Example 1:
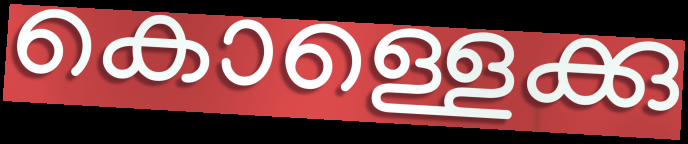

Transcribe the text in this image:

കൊള്ളെക്കു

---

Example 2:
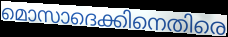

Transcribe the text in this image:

മൊസാദെക്കിനെതിരെ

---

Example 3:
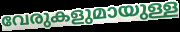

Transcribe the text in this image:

വേരുകളുമായുള്ള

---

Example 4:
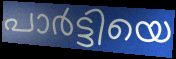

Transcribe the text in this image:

പാർട്ടിയെ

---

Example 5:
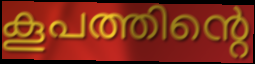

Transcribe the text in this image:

കൂപത്തിന്റെ